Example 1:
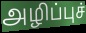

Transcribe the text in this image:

அழிப்புச்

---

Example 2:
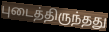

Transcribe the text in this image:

புடைத்திருந்தது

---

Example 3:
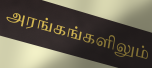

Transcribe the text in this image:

அரங்கங்களிலும்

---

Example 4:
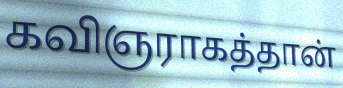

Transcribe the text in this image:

கவிஞராகத்தான்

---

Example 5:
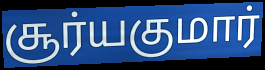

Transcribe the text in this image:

சூர்யகுமார்